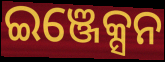
ଇଞ୍ଜେକ୍ସନ